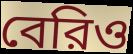
বেরিও